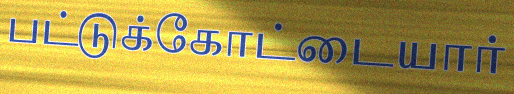
பட்டுக்கோட்டையார்